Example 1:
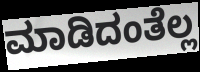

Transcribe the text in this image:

ಮಾಡಿದಂತೆಲ್ಲ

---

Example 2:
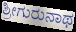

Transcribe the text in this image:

ಶ್ರೀಗುರುನಾಥ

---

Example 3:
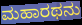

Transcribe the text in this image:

ಮಹಾರಥನು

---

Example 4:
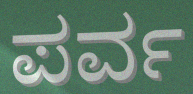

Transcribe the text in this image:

ಪರ್ವ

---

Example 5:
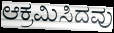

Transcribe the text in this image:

ಆಕ್ರಮಿಸಿದವು